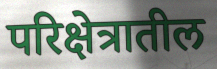
परिक्षेत्रातील